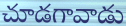
చూడగావాడు